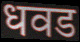
धवड